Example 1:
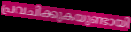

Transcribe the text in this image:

പ്രവചിക്കുകയുണ്ടായി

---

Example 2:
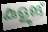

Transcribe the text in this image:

കുളുങ്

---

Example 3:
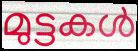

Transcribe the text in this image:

മുട്ടകൾ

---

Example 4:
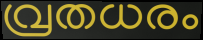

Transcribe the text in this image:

വ്രതധരം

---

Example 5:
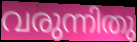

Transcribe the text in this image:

വരുന്നിതു